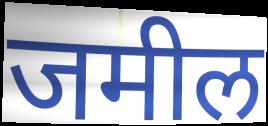
जमील